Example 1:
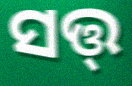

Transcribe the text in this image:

ସତ୍ତ୍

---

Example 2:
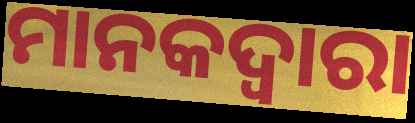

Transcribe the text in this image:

ମାନକଦ୍ୱାରା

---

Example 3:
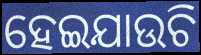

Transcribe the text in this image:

ହେଇଯାଉଚି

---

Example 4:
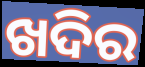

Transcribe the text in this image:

ଖଦିର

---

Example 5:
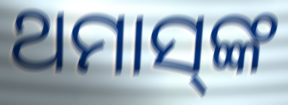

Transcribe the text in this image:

ଥମାସ୍‌ଙ୍କ